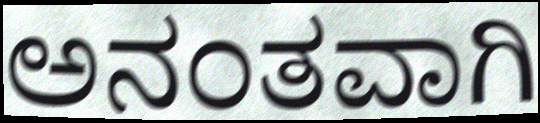
ಅನಂತವಾಗಿ